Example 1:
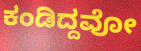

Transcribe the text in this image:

ಕಂಡಿದ್ದವೋ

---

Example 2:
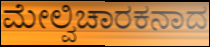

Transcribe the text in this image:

ಮೇಲ್ವಿಚಾರಕನಾದ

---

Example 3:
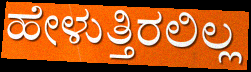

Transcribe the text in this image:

ಹೇಳುತ್ತಿರಲಿಲ್ಲ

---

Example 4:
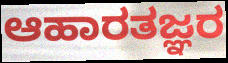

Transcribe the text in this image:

ಆಹಾರತಜ್ಞರ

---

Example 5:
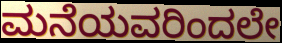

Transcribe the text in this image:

ಮನೆಯವರಿಂದಲೇ